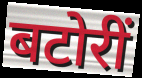
बटोरीं